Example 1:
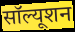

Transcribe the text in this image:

सॉल्यूशन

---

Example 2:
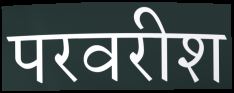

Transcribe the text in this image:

परवरीश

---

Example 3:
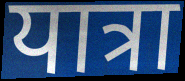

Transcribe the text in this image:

यात्रा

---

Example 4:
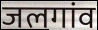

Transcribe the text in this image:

जलगांव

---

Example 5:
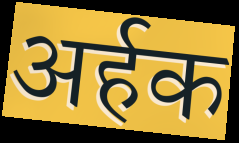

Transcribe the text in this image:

अर्हक